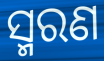
ସ୍ମରଣ